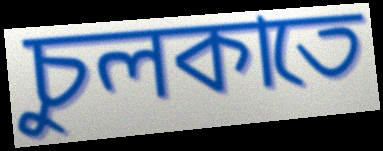
চুলকাতে